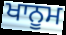
ਖਾਨੂਮ